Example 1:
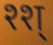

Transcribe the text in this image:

श्श्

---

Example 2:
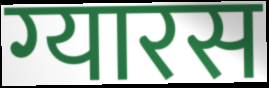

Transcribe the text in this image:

ग्यारस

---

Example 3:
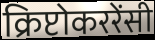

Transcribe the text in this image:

क्रिप्टोकररेंसी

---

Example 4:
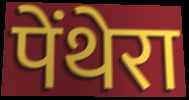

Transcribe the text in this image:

पेंथेरा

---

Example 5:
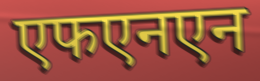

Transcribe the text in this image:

एफएनएन